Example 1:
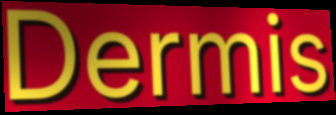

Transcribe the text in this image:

Dermis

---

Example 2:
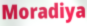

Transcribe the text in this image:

Moradiya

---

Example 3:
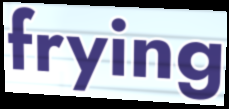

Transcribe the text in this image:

frying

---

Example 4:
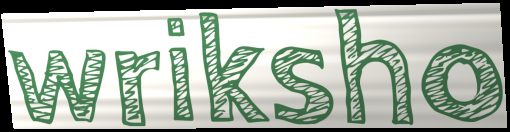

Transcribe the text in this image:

wriksho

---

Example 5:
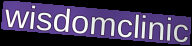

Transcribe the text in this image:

wisdomclinic